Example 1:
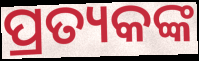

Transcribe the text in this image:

ପ୍ରତ୍ୟକଙ୍କ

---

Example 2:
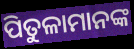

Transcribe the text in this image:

ପିତୁଳାମାନଙ୍କ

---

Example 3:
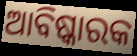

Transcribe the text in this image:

ଆବିଷ୍କାରକ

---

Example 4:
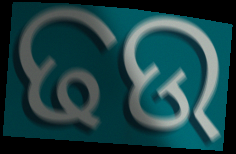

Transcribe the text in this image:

ଢଉ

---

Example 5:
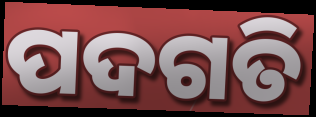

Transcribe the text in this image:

ପଦଗତି